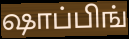
ஷாப்பிங்